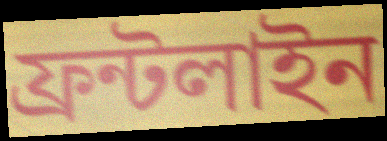
ফ্রন্টলাইন